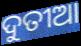
ଦୁତୀଆ